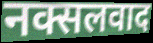
नक्सलवाद